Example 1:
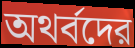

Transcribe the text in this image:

অথর্বদের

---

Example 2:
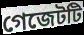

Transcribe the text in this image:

গেজেটটি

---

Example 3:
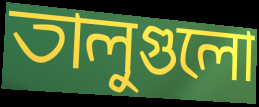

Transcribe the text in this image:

তালুগুলো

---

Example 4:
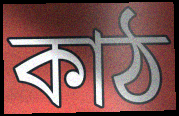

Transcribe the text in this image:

কাঠ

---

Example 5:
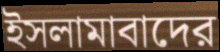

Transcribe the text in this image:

ইসলামাবাদের